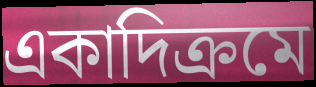
একাদিক্ৰমে